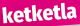
ketketla